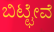
ಬಿಟ್ಟೇವೆ